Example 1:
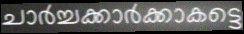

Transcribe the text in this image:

ചാർച്ചക്കാർക്കാകട്ടെ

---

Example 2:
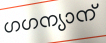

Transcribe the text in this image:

ഗഗന്യാന്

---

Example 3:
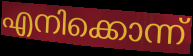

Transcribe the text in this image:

എനിക്കൊന്ന്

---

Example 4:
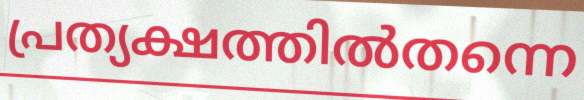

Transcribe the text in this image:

പ്രത്യക്ഷത്തിൽതന്നെ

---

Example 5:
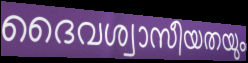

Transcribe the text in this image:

ദൈവശ്വാസീയതയും